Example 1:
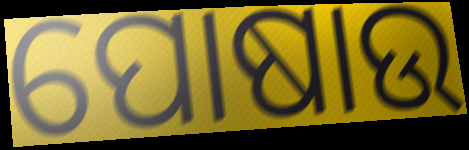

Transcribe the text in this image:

ପୋଷାଉ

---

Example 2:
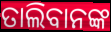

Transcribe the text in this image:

ତାଲିବାନଙ୍କ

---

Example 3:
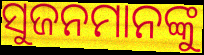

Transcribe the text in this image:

ସୁଜନମାନଙ୍କୁ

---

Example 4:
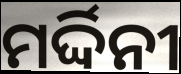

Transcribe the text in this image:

ମର୍ଦ୍ଦିନୀ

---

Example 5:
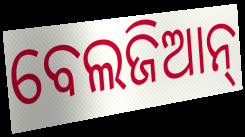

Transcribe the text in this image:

ବେଲଜିଆନ୍